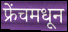
फ्रेंचमधून